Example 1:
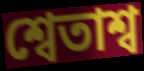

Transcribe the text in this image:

শ্বেতাশ্ব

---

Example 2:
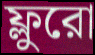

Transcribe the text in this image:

ফ্লুরো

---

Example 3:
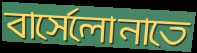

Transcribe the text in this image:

বার্সেলোনাতে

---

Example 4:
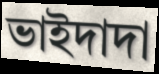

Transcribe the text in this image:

ভাইদাদা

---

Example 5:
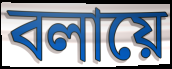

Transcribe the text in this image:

বলায়ে